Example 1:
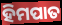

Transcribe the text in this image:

ହିମପାତ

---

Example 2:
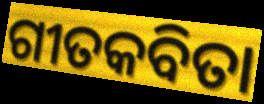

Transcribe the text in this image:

ଗୀତକବିତା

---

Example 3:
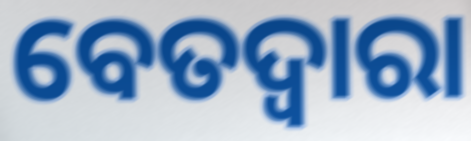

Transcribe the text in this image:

ବେତଦ୍ୱାରା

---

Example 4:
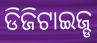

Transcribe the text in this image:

ଡିଜିଟାଇଜ୍ଡ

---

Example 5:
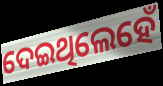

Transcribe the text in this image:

ଦେଇଥିଲେହେଁ